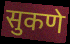
सुकणे